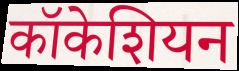
कॉकेशियन